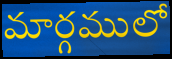
మార్గములో